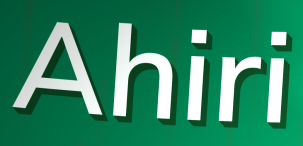
Ahiri